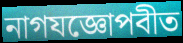
নাগযজ্ঞোপবীত